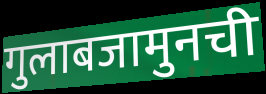
गुलाबजामुनची